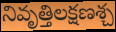
నివృత్తిలక్షణశ్చ